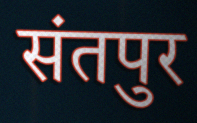
संतपुर